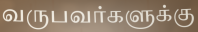
வருபவர்களுக்கு